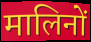
मालिनों